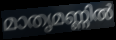
മാതൃമണ്ണിൽ